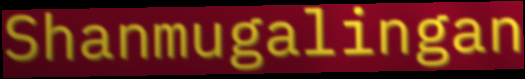
Shanmugalingan